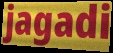
jagadi